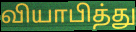
வியாபித்து